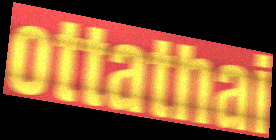
ottathai